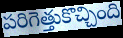
పరిగెత్తుకొచ్చింది